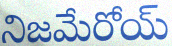
నిజమేరోయ్